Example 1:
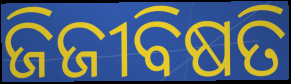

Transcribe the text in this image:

ଜିଜୀବିଷତି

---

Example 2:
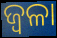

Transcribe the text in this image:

ଜ୍ଵଳା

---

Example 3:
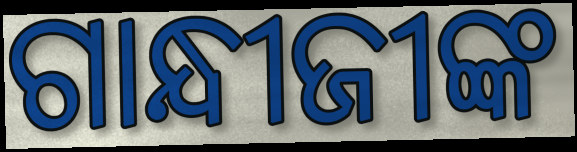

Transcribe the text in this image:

ଗାନ୍ଧୀଜୀଙ୍କ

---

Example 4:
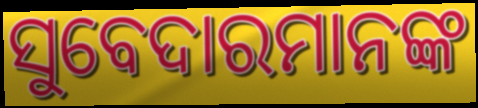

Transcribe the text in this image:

ସୁବେଦାରମାନଙ୍କ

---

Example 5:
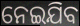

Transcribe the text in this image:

ନେଇଯିବ